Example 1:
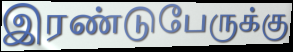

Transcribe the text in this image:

இரண்டுபேருக்கு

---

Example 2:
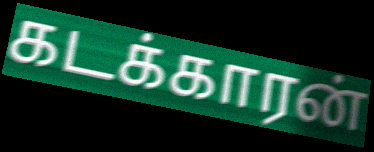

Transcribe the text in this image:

கடக்காரன்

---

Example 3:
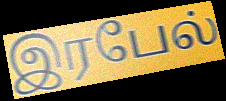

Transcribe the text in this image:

இரபேல்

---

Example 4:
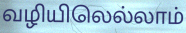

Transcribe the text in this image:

வழியிலெல்லாம்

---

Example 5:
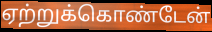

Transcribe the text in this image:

ஏற்றுக்கொண்டேன்